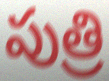
పుత్రి